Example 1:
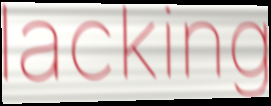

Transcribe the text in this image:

lacking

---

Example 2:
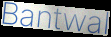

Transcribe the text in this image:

Bantwal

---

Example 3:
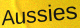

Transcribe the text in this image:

Aussies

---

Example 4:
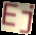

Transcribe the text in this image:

Ej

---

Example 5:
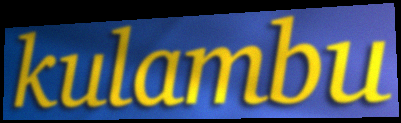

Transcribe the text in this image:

kulambu